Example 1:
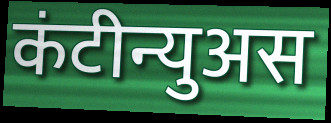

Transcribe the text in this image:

कंटीन्युअस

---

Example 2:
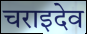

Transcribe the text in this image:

चराइदेव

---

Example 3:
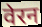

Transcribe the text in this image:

वेरन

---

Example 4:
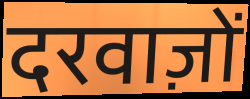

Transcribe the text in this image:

दरवाज़ों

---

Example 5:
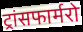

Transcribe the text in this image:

ट्रांसफार्मरो